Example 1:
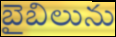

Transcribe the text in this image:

బైబిలును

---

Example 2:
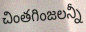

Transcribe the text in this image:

చింతగింజలన్నీ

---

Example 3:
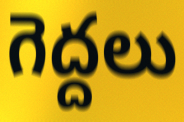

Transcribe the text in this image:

గెద్దలు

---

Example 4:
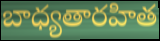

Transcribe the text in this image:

బాధ్యతారహిత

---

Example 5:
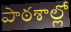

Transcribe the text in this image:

పాఠశాల్లో